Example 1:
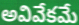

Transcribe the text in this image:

అవివేకమే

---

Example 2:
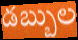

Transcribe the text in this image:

డబ్బుల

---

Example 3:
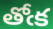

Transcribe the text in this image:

తోఁక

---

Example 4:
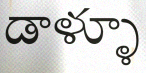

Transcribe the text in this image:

డాళ్ళూ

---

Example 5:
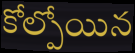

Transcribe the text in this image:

కోల్పోయిన